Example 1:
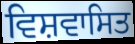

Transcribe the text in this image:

ਵਿਸ਼ਵਾਸਿਤ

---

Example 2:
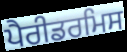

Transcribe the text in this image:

ਪੈਰੀਡਰਮਿਸ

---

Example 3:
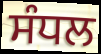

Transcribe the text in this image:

ਸੰਧਲ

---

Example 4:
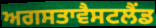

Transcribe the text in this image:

ਅਗਸਤਾਵੈਸਟਲੈਂਡ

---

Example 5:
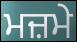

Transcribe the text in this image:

ਮਜ਼ਮੇ